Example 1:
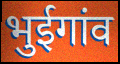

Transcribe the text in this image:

भुईगांव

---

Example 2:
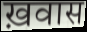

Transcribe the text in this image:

ख़वास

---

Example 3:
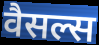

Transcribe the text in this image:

वैसल्स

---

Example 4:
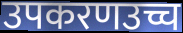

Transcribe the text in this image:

उपकरणउच्च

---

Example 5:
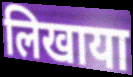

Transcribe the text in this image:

लिखाया